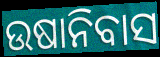
ଉଷାନିବାସ